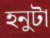
হনুটা